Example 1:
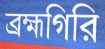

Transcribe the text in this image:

ব্রহ্মগিরি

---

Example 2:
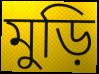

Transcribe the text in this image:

মুড়ি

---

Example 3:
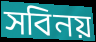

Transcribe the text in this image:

সবিনয়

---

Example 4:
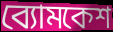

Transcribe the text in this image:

ব্যোমকেশ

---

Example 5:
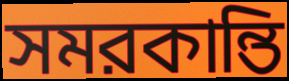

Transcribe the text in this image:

সমরকান্তি